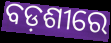
ବଡ଼ଶୀରେ